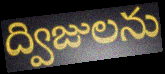
ద్విజులను